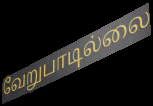
வேறுபாடில்லை